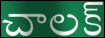
చాలక్